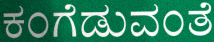
ಕಂಗೆಡುವಂತೆ